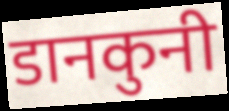
डानकुनी